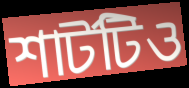
শার্টটিও